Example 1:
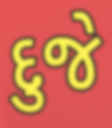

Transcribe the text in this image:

દુજે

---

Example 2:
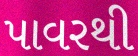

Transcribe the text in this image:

પાવરથી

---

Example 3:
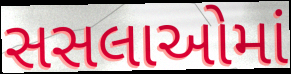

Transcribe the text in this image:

સસલાઓમાં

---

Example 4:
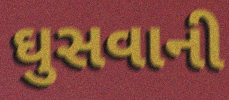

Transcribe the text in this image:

ઘુસવાની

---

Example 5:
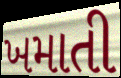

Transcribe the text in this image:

ખમાતી